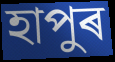
হাপুৰ